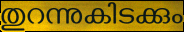
തുറന്നുകിടക്കും